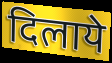
दिलाये